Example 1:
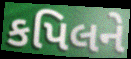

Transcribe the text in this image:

કપિલને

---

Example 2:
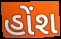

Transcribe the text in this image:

હોંશ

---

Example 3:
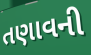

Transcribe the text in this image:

તણાવની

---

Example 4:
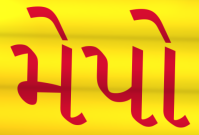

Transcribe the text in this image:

મેપો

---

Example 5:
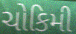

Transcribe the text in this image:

ચોકિમી